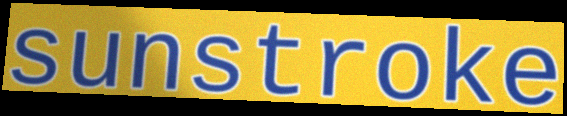
sunstroke